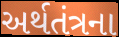
અર્થતંત્રના